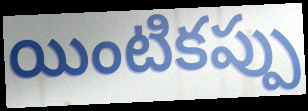
యింటికప్పు